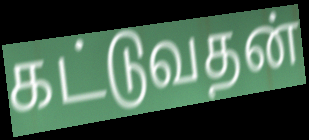
கட்டுவதன்